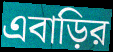
এবাড়ির